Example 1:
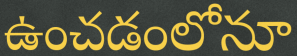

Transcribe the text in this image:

ఉంచడంలోనూ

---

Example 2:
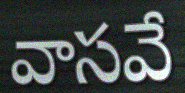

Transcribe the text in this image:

వాసవే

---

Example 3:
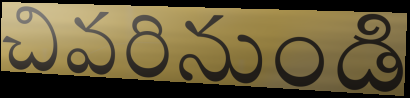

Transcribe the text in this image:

చివరినుండి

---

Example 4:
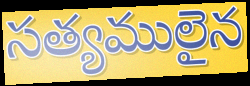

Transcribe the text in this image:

సత్యములైన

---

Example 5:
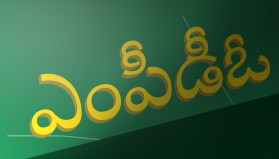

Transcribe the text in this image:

ఎంపీడీఓ